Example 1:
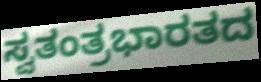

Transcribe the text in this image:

ಸ್ವತಂತ್ರಭಾರತದ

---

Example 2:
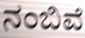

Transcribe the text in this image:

ನಂಬಿವೆ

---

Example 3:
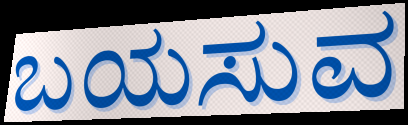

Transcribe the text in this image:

ಬಯಸುವ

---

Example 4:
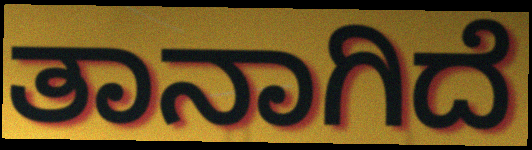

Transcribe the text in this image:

ತಾನಾಗಿದೆ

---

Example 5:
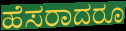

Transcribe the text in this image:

ಹೆಸರಾದರೂ